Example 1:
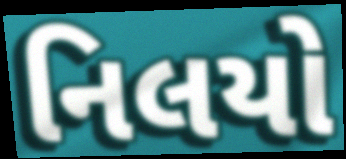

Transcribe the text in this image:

નિલયો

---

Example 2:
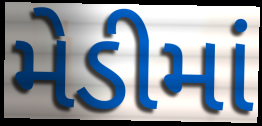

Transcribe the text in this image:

મેડીમાં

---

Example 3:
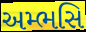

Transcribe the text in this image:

અમ્ભસિ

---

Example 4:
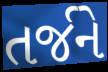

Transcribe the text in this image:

તર્જને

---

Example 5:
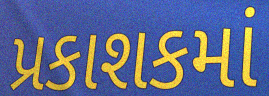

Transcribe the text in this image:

પ્રકાશકમાં